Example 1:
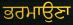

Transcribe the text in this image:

ਭਰਮਾਉਣਾ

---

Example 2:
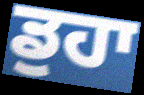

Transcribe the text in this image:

ਡੁਹਾ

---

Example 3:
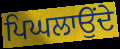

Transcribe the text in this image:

ਪਿਘਲਾਉਂਦੇ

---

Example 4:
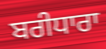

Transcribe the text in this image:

ਬਰੀਧਾਰਾ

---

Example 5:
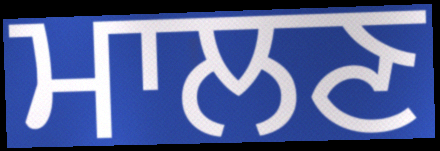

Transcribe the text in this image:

ਮਾਲਣ